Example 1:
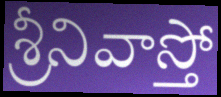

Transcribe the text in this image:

శ్రీనివాస్తో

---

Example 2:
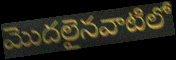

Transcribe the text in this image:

మొదలైనవాటిలో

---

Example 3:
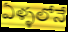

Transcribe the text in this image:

ఏళ్ళలోనే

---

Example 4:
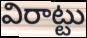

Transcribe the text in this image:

విరాట్టు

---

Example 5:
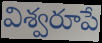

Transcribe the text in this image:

విశ్వరూపే